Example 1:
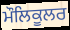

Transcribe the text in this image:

ਮੌਲਿਕੂਲਰ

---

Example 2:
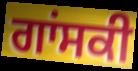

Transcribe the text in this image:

ਗਾਂਸਕੀ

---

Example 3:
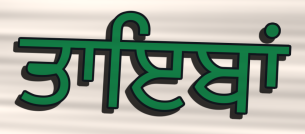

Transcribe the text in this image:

ਤਾਇਬਾਂ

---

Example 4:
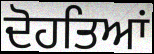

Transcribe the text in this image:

ਦੋਹਤਿਆਂ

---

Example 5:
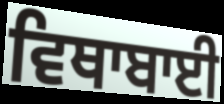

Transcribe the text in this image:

ਵਿਥਾਬਾਈ